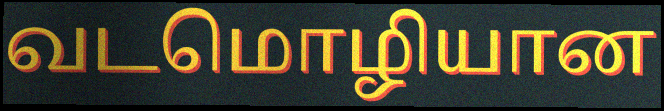
வடமொழியான